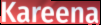
Kareena